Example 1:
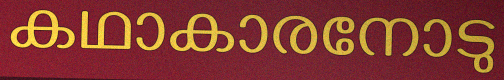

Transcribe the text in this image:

കഥാകാരനോടു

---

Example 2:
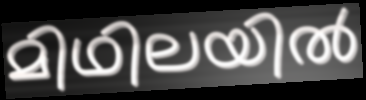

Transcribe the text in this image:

മിഥിലയിൽ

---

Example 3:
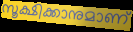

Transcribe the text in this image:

സൂക്ഷിക്കാനുമാണ്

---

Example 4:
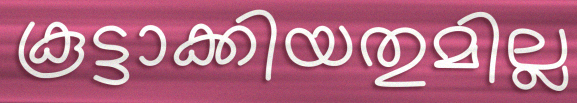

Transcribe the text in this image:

കൂട്ടാക്കിയതുമില്ല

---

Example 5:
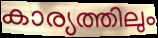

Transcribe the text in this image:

കാര്യത്തിലും